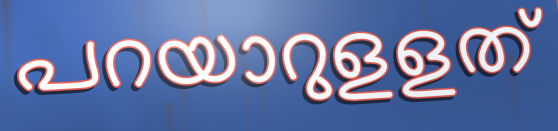
പറയാറുളളത്